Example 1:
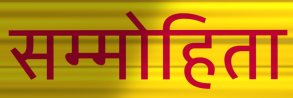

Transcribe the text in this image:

सम्मोहिता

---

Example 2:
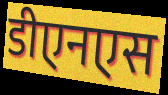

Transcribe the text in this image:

डीएनएस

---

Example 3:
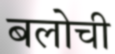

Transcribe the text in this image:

बलोची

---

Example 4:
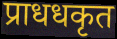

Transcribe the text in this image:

प्राधधकृत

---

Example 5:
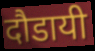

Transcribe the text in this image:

दौडायी